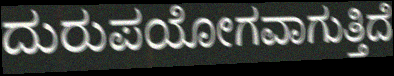
ದುರುಪಯೋಗವಾಗುತ್ತಿದೆ